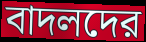
বাদলদের